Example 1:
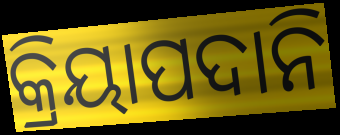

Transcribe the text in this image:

କ୍ରିୟାପଦାନି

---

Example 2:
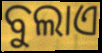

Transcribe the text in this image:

ବୁଲାଏ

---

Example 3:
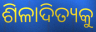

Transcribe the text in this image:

ଶିଳାଦିତ୍ୟକୁ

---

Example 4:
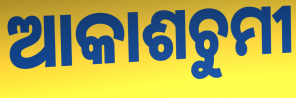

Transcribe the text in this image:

ଆକାଶଚୁମୀ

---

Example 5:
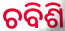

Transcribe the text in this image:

ଚବିଶି